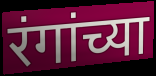
रंगांच्या